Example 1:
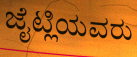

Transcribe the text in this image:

ಜೈಟ್ಲಿಯವರು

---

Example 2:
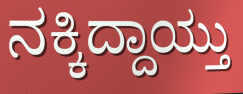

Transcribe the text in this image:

ನಕ್ಕಿದ್ದಾಯ್ತು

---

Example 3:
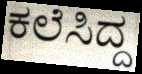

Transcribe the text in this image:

ಕಲೆಸಿದ್ದ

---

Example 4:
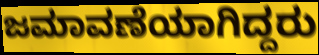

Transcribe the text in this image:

ಜಮಾವಣೆಯಾಗಿದ್ದರು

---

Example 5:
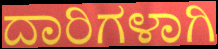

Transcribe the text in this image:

ದಾರಿಗಳಾಗಿ